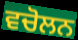
ਵਚੋਲਨ